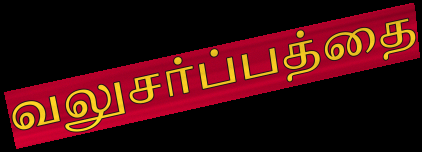
வலுசர்ப்பத்தை